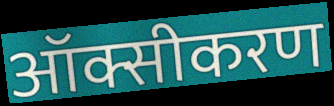
ऑक्सीकरण